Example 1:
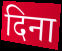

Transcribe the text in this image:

दिना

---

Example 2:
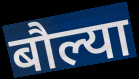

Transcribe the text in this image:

बौल्या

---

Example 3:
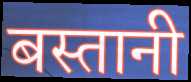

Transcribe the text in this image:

बस्तानी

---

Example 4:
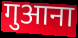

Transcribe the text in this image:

गुआना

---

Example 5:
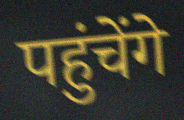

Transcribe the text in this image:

पहुंचेंगे